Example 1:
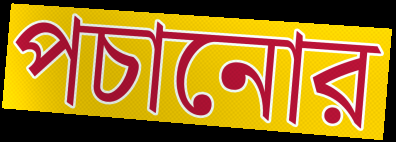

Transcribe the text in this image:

পচানোর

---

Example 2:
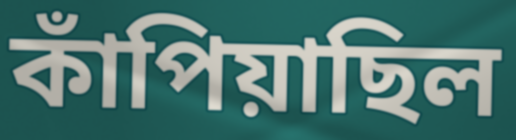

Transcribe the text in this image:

কাঁপিয়াছিল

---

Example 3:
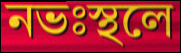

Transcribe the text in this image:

নভঃস্থলে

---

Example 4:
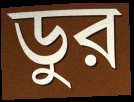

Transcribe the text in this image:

ডুর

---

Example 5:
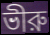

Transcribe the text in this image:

ভীরু